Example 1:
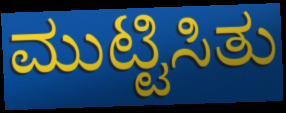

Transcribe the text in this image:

ಮುಟ್ಟಿಸಿತು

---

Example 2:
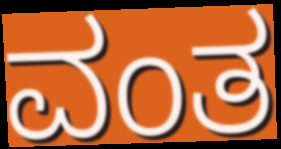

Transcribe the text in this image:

ವಂತ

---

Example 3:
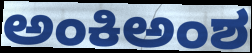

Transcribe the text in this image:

ಅಂಕಿಅಂಶ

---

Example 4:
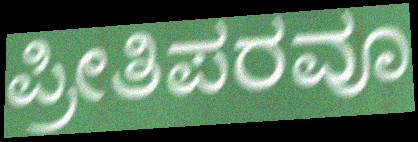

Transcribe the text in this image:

ಪ್ರೀತಿಪರವೂ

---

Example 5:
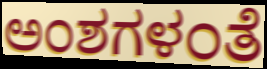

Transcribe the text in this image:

ಅಂಶಗಳಂತೆ